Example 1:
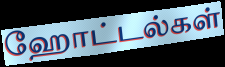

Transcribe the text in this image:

ஹோட்டல்கள்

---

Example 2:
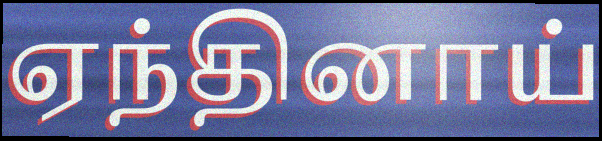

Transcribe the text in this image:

ஏந்தினாய்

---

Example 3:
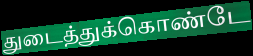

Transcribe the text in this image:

துடைத்துக்கொண்டே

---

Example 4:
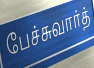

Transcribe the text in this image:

பேச்சுவார்த்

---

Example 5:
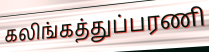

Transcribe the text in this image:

கலிங்கத்துப்பரணி